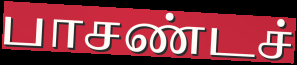
பாசண்டச்